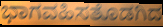
ಭಾಗವಹಿಸತೊಡಗಿದ